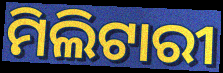
ମିଲିଟାରୀ